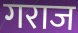
गराज